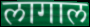
लागाल